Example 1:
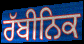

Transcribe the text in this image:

ਰੱਬੀਨਿਕ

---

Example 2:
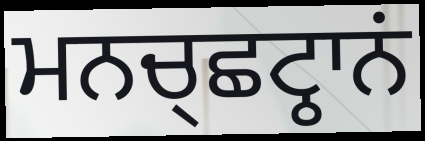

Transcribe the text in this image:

ਮਨਚ੍ਛਟ੍ਠਾਨਂ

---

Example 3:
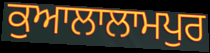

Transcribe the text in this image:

ਕੁਆਲਾਲਾਮਪੁਰ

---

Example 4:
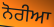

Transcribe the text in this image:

ਨੋਰੀਆ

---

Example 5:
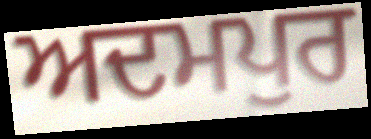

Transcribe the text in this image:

ਅਦਮਪੁਰ